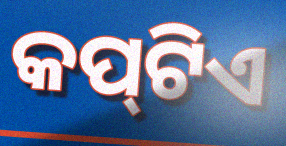
କପ୍‌ଟିଏ